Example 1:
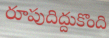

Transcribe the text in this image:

రూపుదిద్దుకొంది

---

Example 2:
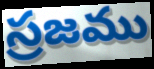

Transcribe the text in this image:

స్రజము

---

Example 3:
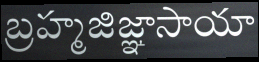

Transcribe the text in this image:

బ్రహ్మజిజ్ఞాసాయా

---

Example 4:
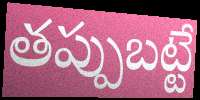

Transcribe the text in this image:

తప్పుబట్టే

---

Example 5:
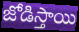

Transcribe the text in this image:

జోడిస్తాయి